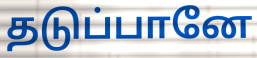
தடுப்பானே